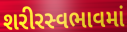
શરીરસ્વભાવમાં